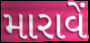
મારાવેં